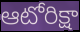
ఆటోరిక్షా